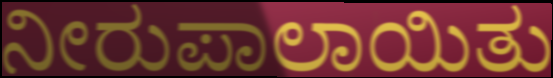
ನೀರುಪಾಲಾಯಿತು